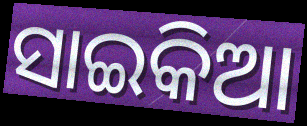
ସାଇକିଆ